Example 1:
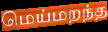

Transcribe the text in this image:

மெய்மறந்த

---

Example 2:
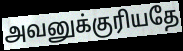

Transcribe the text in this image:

அவனுக்குரியதே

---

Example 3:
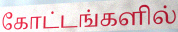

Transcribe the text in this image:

கோட்டங்களில்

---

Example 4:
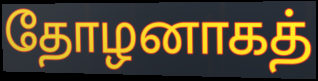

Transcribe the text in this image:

தோழனாகத்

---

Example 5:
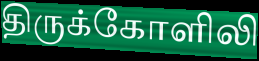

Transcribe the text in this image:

திருக்கோளிலி